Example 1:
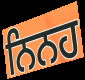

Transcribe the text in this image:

ਨਿਨਹ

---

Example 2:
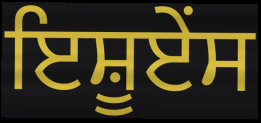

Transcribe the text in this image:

ਇਸ਼ੂਏਂਸ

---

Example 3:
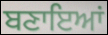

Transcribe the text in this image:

ਬਣਾਇਆਂ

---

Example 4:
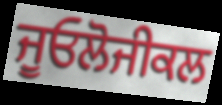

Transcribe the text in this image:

ਜੂਓਲੋਜੀਕਲ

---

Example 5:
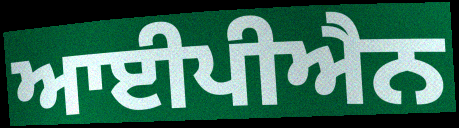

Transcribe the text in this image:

ਆਈਪੀਐਨ